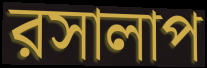
রসালাপ